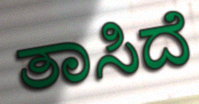
ತಾಸಿದೆ